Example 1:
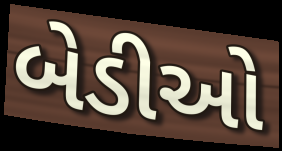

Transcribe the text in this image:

બેડીઓ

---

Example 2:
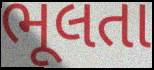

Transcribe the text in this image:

ભૂલતા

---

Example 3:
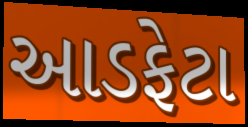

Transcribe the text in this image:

આડફેટા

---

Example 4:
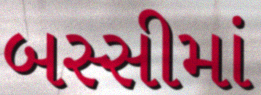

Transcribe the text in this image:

બસ્સીમાં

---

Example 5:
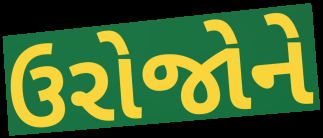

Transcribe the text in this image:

ઉરોજોને